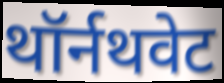
थॉर्नथवेट